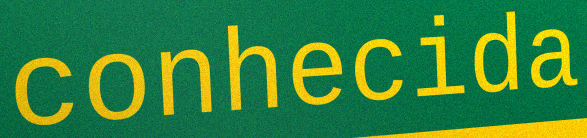
conhecida